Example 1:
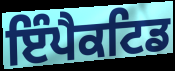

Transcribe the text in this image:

ਇੰਪੈਕਟਿਡ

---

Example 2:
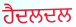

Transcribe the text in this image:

ਹੈਦਲਦਲ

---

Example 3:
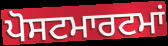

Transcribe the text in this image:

ਪੋਸਟਮਾਰਟਮਾਂ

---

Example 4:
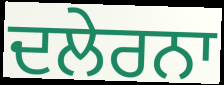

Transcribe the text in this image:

ਦਲੇਰਨਾ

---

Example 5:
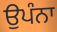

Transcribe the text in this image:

ਉਪੰਨਾ